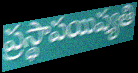
ప్రస్థాపయిష్యతి